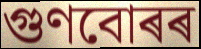
গুণবোৰৰ